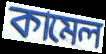
কামেল